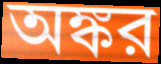
অঙ্কর